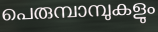
പെരുമ്പാമ്പുകളും